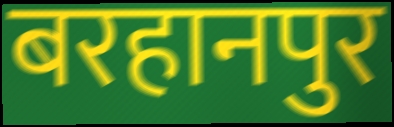
बरहानपुर